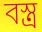
বস্ত্ৰ